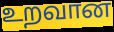
உறவான